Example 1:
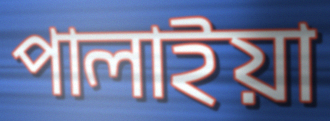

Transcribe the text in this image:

পালাইয়া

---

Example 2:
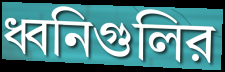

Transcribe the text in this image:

ধ্বনিগুলির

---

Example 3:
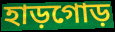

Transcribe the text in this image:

হাড়গোড়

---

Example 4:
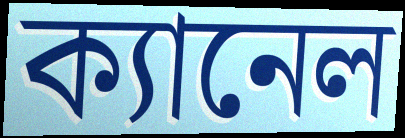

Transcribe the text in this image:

ক্যানেল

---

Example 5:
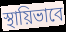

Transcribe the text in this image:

স্থায়িভাবে